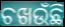
ଚଖଉଁଛି